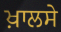
ਖ਼ਾਲਸੇ